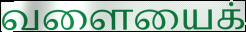
வளையைக்